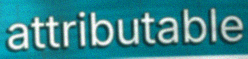
attributable